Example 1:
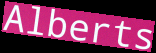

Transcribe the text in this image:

Alberts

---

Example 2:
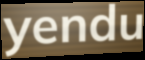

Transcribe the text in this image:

yendu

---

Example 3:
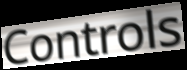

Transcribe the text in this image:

Controls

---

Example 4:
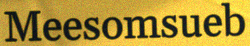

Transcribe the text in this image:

Meesomsueb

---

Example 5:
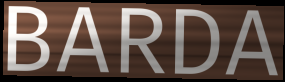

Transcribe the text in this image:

BARDA